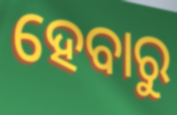
ହେବାରୁ